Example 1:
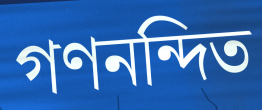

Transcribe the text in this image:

গণনন্দিত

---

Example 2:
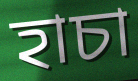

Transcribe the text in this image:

হাচা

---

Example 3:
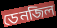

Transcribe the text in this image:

ডেনজিল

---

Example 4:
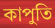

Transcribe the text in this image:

কাপুতি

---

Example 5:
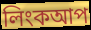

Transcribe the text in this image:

লিংকআপ